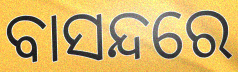
ବାସନ୍ଦରେ